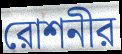
রোশনীর